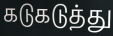
கடுகடுத்து